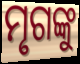
ମୃଗଙ୍କୁ